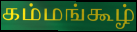
கம்மங்கூழ்